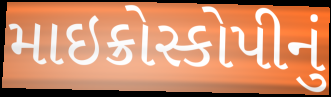
માઇક્રોસ્કોપીનું